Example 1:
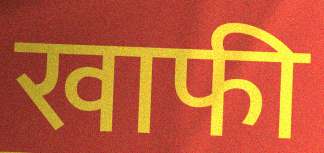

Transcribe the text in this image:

खाफी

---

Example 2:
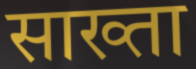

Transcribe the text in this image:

साख्ता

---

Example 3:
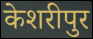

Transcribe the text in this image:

केशरीपुर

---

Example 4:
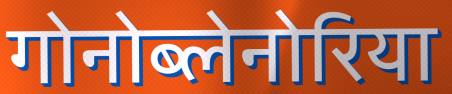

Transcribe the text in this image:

गोनोब्लेनोरिया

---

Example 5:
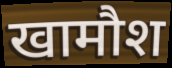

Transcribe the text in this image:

खामौश